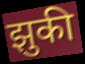
झुकी